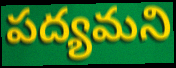
పద్యమని